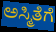
ಅಸ್ಮಿತೆಗೆ